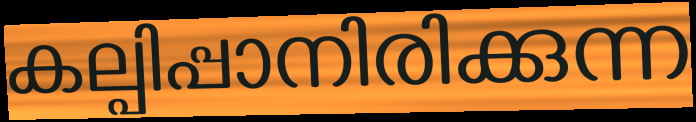
കല്പിപ്പാനിരിക്കുന്ന